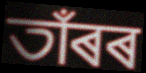
তাঁৰৰ